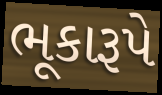
ભૂકારૂપે